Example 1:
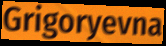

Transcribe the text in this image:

Grigoryevna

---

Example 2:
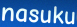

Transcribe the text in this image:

nasuku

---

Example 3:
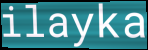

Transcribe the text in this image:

ilayka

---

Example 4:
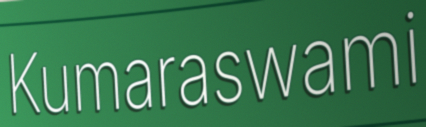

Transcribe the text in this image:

Kumaraswami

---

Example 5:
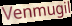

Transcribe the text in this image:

Venmugil